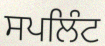
ਸਪਲਿੰਟ